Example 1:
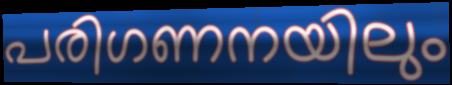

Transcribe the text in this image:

പരിഗണനയിലും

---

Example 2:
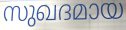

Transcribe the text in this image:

സുഖദമായ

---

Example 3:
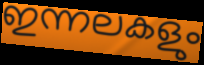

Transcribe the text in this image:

ഇന്നലകളും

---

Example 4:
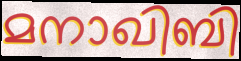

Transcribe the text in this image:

മനാഖിബി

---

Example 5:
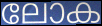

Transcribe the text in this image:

ലോക